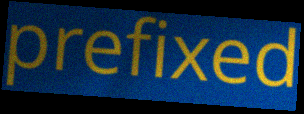
prefixed